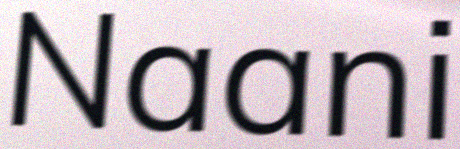
Naani